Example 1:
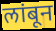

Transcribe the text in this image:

लांबून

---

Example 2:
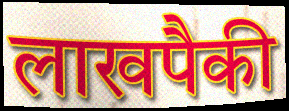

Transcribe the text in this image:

लाखपैकी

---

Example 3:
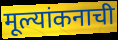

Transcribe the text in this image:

मूल्यांकनाची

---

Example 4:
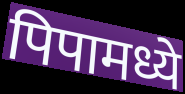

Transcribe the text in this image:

पिपामध्ये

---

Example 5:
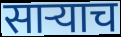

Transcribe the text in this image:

साऱ्याच